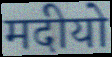
मदीयो